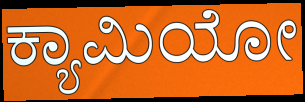
ಕ್ಯಾಮಿಯೋ